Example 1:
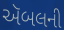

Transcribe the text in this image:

ઍબલની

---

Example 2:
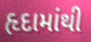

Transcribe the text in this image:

હૃદામાંથી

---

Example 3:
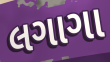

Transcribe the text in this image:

લગાગા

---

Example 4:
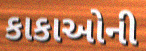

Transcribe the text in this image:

કાકાઓની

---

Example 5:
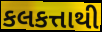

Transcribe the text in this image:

કલકત્તાથી